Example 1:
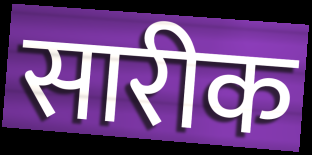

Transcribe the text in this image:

सारीक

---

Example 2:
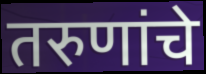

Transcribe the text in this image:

तरुणांचे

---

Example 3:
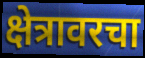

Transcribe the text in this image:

क्षेत्रावरचा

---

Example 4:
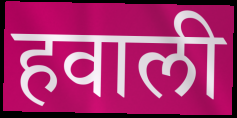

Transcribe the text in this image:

हवाली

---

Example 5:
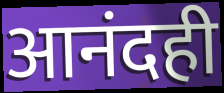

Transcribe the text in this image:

आनंदही